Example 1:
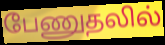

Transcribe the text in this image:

பேணுதலில்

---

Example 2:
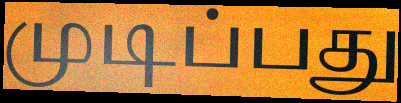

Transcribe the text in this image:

முடிப்பது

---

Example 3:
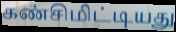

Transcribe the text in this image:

கண்சிமிட்டியது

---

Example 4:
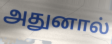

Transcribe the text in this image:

அதுனால்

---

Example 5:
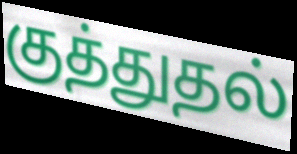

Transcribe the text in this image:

குத்துதல்